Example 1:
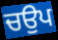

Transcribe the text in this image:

ਚਉਪ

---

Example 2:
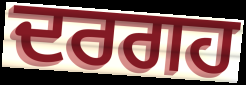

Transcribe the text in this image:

ਦਰਗਹ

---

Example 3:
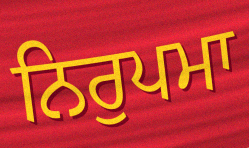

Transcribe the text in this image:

ਨਿਰੁਪਮਾ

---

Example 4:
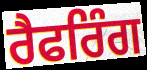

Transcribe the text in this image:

ਰੈਫਰਿੰਗ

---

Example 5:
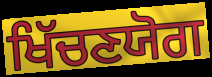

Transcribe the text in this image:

ਖਿੱਚਣਯੋਗ